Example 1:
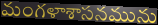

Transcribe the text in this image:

మంగళాశాసనమును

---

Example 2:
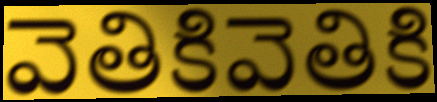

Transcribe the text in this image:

వెతికివెతికి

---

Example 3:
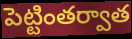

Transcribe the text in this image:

పెట్టింతర్వాత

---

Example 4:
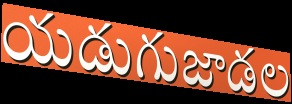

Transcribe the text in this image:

యడుగుజాడల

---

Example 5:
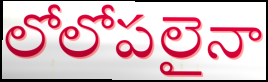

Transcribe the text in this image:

లోలోపలైనా